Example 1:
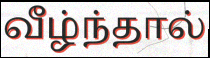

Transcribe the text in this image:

வீழ்ந்தால்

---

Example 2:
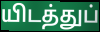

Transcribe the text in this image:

யிடத்துப்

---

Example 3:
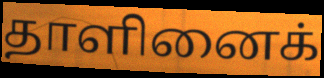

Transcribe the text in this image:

தாளினைக்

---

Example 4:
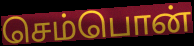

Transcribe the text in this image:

செம்பொன்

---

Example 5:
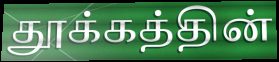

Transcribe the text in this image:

தூக்கத்தின்